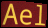
Ael